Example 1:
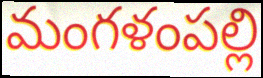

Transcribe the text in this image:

మంగళంపల్లి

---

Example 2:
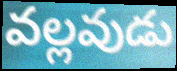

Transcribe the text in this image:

వల్లవుడు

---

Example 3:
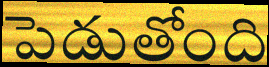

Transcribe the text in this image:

పెడుతోంది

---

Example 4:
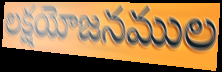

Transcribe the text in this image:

లక్షయోజనముల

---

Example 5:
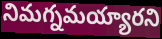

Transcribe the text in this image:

నిమగ్నమయ్యారని